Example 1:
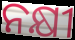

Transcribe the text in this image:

ନକ୍ଷୀ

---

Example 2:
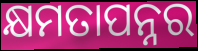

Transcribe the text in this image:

କ୍ଷମତାପନ୍ନର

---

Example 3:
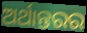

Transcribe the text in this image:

ଅର୍ଥାନ୍ତରର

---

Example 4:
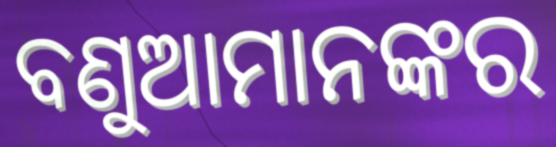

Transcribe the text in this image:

ବଣୁଆମାନଙ୍କର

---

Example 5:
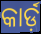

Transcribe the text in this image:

କାର୍ଡ଼